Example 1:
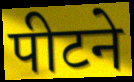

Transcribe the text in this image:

पीटने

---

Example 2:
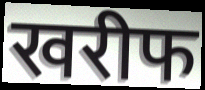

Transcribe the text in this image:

खरीफ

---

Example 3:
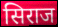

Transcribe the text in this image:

सिराज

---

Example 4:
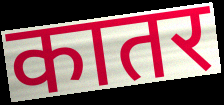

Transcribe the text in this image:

कातर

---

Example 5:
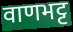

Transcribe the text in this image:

वाणभट्ट